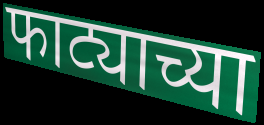
फाट्याच्या